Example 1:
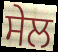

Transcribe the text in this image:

ਸੇਲ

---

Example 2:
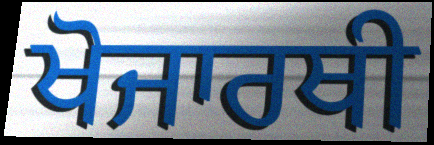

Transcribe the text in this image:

ਖੋਜਾਰਥੀ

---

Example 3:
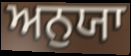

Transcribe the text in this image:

ਅਨੁਯਾ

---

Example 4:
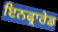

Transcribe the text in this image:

ਇਨਫ੍ਰਾਰੇਡ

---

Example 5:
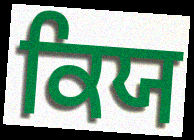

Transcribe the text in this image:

ਕਿਯ